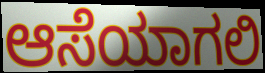
ಆಸೆಯಾಗಲಿ